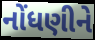
નોંધણીને